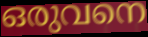
ഒരുവനെ